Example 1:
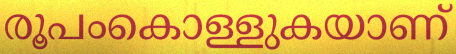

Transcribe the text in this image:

രൂപംകൊള്ളുകയാണ്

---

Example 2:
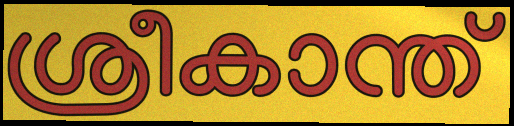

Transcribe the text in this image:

ശ്രീകാന്ത്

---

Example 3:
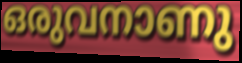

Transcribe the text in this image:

ഒരുവനാണു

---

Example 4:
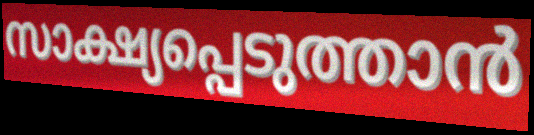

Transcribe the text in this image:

സാക്ഷ്യപ്പെടുത്താൻ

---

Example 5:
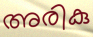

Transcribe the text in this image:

അരികു